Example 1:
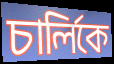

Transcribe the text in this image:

চার্লিকে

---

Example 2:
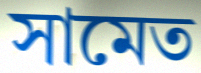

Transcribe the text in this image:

সামেত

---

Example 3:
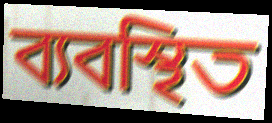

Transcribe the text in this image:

ব্যবস্থিত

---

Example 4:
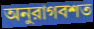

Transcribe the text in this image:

অনুরাগবশত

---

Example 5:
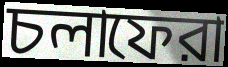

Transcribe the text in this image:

চলাফেরা